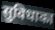
सुविधाका